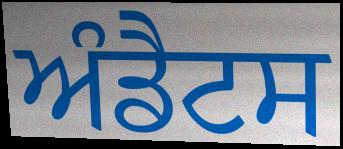
ਅੰਡੈਟਸ